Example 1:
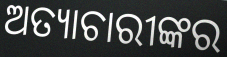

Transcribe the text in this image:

ଅତ୍ୟାଚାରୀଙ୍କର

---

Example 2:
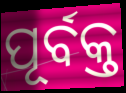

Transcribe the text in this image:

ପୂର୍ବକ୍ତ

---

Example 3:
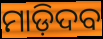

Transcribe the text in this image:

ମାଡ଼ିଦବ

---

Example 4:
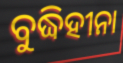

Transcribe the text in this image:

ବୁଦ୍ଧିହୀନା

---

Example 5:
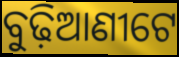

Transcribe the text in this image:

ବୁଢ଼ିଆଣୀଟେ